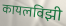
कायलविझी